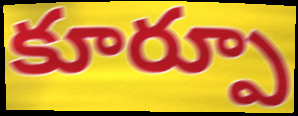
కూర్పూ